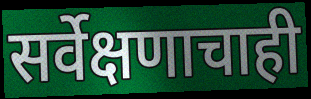
सर्वेक्षणाचाही